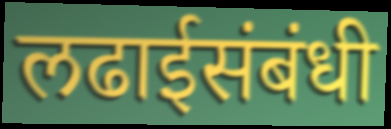
लढाईसंबंधी